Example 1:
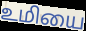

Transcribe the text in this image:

உமியை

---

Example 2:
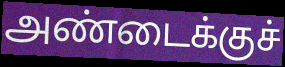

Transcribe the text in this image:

அண்டைக்குச்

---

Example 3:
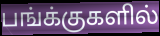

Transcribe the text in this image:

பங்க்குகளில்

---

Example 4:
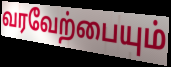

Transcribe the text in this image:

வரவேற்பையும்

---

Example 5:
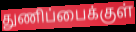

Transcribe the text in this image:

துணிப்பைக்குள்